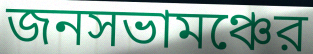
জনসভামঞ্চের